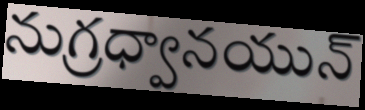
నుగ్రధ్వానయున్